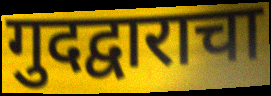
गुदद्वाराचा